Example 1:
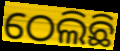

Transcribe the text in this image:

ଠେଲିଛି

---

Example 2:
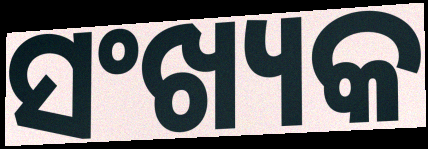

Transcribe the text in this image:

ସଂଖ୍ୟକ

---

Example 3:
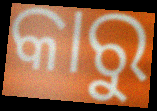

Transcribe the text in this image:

କାରୁ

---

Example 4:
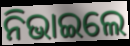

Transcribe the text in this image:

ନିଭାଇଲେ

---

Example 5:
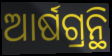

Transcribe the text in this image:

ଆର୍ଷଗ୍ରନ୍ଥି